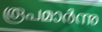
രൂപമാർന്നു